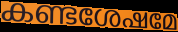
കണ്ടശേഷമേ